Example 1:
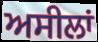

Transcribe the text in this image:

ਅਸੀਲਾਂ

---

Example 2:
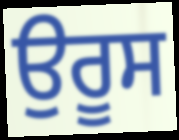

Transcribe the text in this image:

ਉਰੂਸ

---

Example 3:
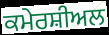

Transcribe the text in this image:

ਕਮੇਰਸ਼ੀਅਲ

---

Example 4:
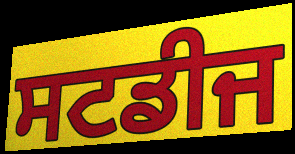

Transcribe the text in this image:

ਸਟਡੀਜ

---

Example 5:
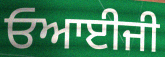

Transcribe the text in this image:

ਓਆਈਜੀ